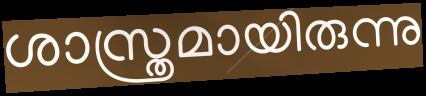
ശാസ്ത്രമായിരുന്നു